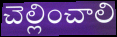
చెల్లించాలి